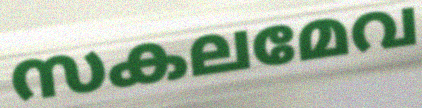
സകലമേവ